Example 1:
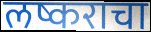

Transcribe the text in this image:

लष्कराचा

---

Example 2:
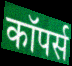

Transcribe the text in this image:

कॉपर्स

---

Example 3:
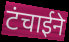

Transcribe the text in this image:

टंचाईने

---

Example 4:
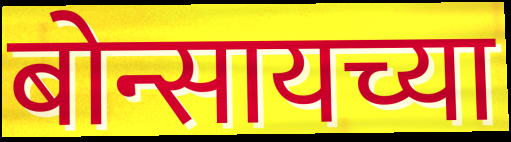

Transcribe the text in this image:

बोन्सायच्या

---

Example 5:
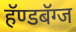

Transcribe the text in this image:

हॅण्डबॅग्ज